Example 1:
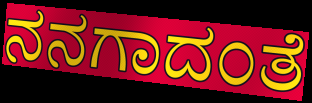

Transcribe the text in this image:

ನನಗಾದಂತೆ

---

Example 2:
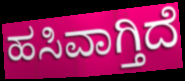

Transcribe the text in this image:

ಹಸಿವಾಗ್ತಿದೆ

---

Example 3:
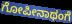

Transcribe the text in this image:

ಗೋಪೀನಾಥಂಗೆ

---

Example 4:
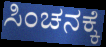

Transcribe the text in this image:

ಸಿಂಚನಕ್ಕೆ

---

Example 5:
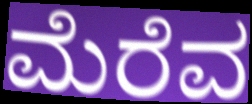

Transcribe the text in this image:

ಮೆರೆವ